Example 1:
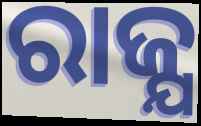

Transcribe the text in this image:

ରାଜ୍ଯ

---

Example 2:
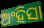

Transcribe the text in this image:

ଅଂହିସା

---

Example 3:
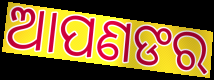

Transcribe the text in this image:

ଆପଣଙର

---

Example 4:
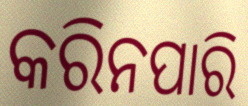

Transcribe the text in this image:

କରିନପାରି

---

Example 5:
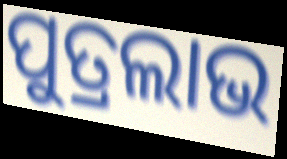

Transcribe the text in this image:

ପୁତ୍ରଲାଭ